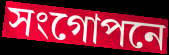
সংগোপনে